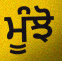
ਮੂੰਝੋ